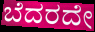
ಬೆದರದೇ